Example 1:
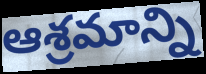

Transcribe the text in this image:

ఆశ్రమాన్ని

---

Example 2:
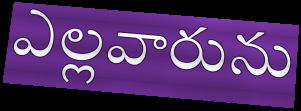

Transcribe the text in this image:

ఎల్లవారును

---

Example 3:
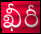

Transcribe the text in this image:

ఖీరీ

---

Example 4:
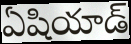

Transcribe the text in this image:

ఏషియాడ్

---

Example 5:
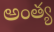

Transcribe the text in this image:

అంత్య